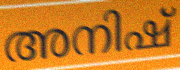
അനിഷ്